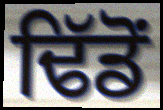
ਢਿੱਡੋਂ